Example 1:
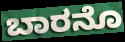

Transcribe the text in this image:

ಬಾರನೊ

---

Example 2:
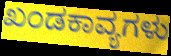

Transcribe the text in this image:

ಖಂಡಕಾವ್ಯಗಳು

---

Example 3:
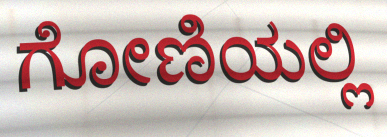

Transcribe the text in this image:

ಗೋಣಿಯಲ್ಲಿ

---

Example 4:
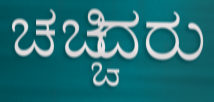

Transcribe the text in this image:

ಚಚ್ಚಿದರು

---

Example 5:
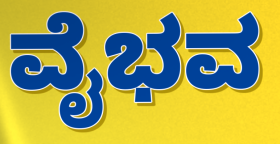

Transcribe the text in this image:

ವೈಭವ